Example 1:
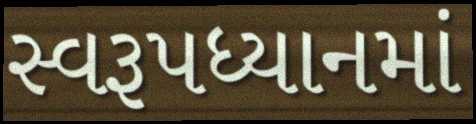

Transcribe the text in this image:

સ્વરૂપધ્યાનમાં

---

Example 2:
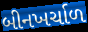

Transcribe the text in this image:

બીનખર્ચાળ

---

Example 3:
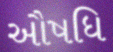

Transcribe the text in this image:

ઔષધિ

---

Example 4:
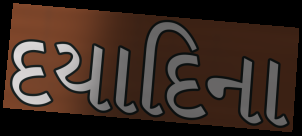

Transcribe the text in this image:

દયાદિના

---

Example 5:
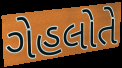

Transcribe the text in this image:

ગેહલોતે